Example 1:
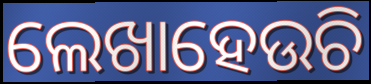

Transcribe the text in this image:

ଲେଖାହେଉଚି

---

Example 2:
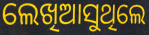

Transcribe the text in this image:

ଲେଖିଆସୁଥିଲେ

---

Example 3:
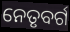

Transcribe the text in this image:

ନେତୃବର୍ଗ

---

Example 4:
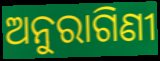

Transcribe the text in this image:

ଅନୁରାଗିଣୀ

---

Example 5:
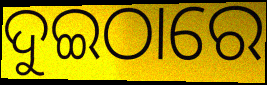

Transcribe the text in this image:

ଦୁଇଠାରେ